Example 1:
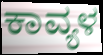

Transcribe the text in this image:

ಕಾವ್ಯಳ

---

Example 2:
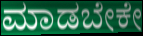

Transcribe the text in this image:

ಮಾಡಬೇಕೇ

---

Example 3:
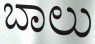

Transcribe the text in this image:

ಬಾಲು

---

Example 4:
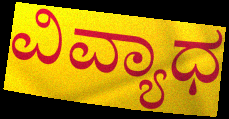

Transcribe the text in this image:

ವಿವ್ಯಾಧ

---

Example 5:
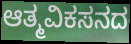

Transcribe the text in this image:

ಆತ್ಮವಿಕಸನದ